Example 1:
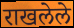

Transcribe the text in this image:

राखलेले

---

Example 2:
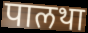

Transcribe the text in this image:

पालथा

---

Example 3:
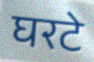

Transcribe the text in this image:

घरटे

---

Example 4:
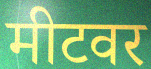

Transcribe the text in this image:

मीटवर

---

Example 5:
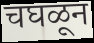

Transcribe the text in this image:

चघळून